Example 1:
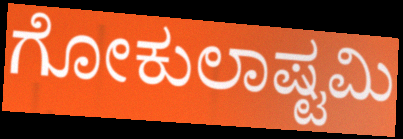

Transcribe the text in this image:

ಗೋಕುಲಾಷ್ಟಮಿ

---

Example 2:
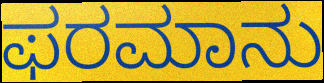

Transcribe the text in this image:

ಫರಮಾನು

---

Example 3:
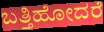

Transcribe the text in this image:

ಬತ್ತಿಹೋದರೆ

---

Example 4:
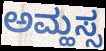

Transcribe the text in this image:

ಅಮ್ಹಸ್ಸ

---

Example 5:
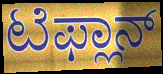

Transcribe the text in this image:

ಟೆಫ್ಲಾನ್